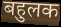
बहुलक